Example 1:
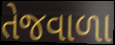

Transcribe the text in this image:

તેજવાળા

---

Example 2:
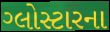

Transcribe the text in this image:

ગ્લોસ્ટારના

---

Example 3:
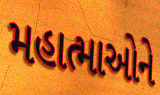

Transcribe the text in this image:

મહાત્માઓને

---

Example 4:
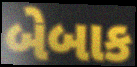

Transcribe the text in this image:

બેબાક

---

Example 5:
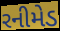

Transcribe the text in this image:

રનીમેડ